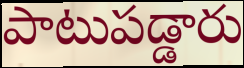
పాటుపడ్డారు